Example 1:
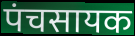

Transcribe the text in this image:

पंचसायक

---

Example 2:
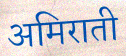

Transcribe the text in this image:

अमिराती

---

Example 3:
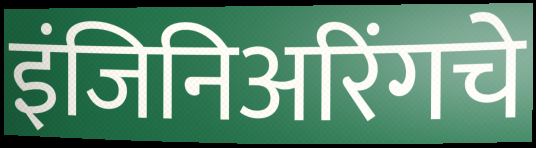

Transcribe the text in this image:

इंजिनिअरिंगचे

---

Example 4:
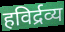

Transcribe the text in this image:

हविर्द्रव्य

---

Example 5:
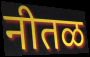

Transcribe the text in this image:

नीतळ